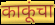
काकूंचा